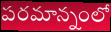
పరమాన్నంలో